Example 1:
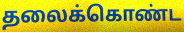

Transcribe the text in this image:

தலைக்கொண்ட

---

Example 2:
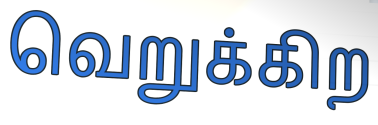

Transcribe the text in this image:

வெறுக்கிற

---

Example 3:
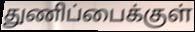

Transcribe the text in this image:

துணிப்பைக்குள்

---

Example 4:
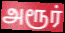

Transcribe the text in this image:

அரூர்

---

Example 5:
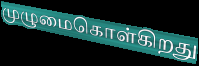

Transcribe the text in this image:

முழுமைகொள்கிறது